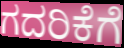
ಗದರಿಕೆಗೆ